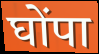
घोंपा